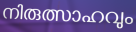
നിരുത്സാഹവും